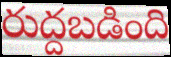
రుద్దబడింది